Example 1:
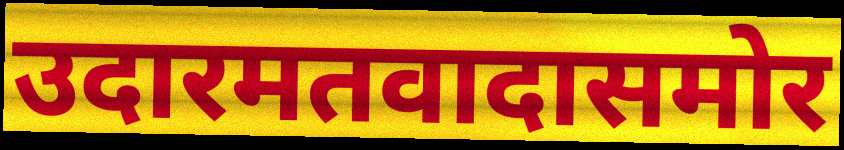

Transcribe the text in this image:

उदारमतवादासमोर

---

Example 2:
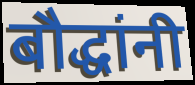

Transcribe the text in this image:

बौद्धांनी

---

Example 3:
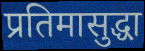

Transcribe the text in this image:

प्रतिमासुद्धा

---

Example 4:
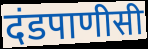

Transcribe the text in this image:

दंडपाणीसी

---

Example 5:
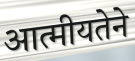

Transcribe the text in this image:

आत्मीयतेने